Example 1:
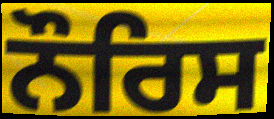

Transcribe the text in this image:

ਨੌਰਿਸ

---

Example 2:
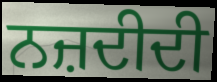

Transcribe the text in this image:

ਨਜ਼ਦੀਦੀ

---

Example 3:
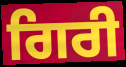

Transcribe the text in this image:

ਗਿਰੀ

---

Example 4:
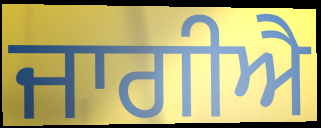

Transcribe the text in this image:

ਜਾਗੀਐ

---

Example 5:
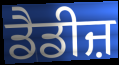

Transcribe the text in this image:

ਡੈਡੀਜ਼